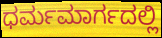
ಧರ್ಮಮಾರ್ಗದಲ್ಲಿ